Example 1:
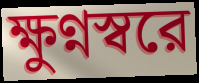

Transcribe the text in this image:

ক্ষুণ্নস্বরে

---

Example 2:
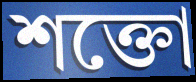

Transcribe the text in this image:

শক্তো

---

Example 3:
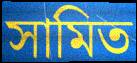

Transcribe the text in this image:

সামিত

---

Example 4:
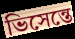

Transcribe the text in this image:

ভিসেন্তে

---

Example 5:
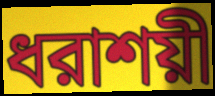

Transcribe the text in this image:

ধরাশয়ী